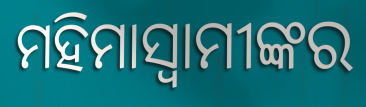
ମହିମାସ୍ୱାମୀଙ୍କର